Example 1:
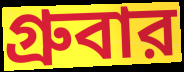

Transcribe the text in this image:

গ্রুবার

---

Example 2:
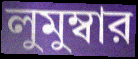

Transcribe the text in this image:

লুমুম্বার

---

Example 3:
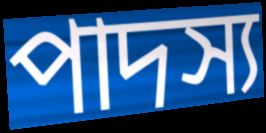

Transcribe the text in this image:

পাদস্য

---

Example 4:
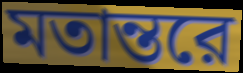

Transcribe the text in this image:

মতান্তরে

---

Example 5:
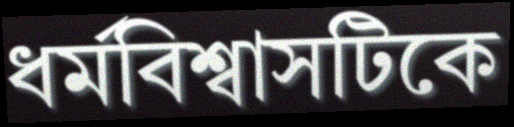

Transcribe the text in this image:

ধর্মবিশ্বাসটিকে